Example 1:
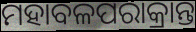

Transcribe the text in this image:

ମହାବଳପରାକ୍ରାନ୍ତ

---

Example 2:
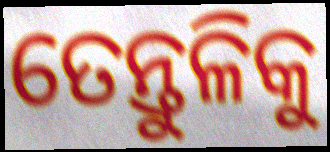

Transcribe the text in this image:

ତେନ୍ତୁଳିକୁ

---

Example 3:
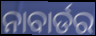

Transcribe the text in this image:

ନାବାର୍ଡର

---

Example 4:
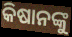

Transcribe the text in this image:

କିଷାନଙ୍କୁ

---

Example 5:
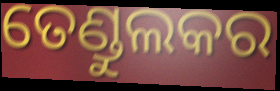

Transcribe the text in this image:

ତେଣ୍ଡୁଲକର